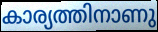
കാര്യത്തിനാണു